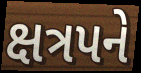
ક્ષત્રપને